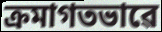
ক্ৰমাগতভাৱে